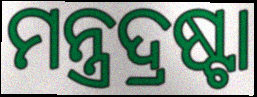
ମନ୍ତ୍ରଦ୍ରଷ୍ଟା